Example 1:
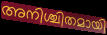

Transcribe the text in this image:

അനിശ്ചിതമായി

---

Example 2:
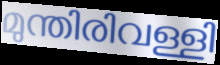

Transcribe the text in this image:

മുന്തിരിവള്ളി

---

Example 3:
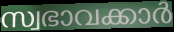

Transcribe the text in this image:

സ്വഭാവക്കാർ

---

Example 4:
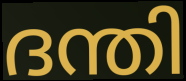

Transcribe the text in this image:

ദന്തി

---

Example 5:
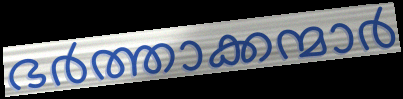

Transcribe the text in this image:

ഭർത്താക്കന്മാർ